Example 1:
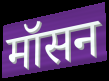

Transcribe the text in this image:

मॉसन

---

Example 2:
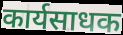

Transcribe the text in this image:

कार्यसाधक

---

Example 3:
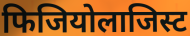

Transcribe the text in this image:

फिजियोलाजिस्ट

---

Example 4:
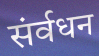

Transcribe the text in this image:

संर्वधन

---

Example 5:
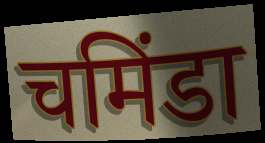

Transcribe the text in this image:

चमिंडा